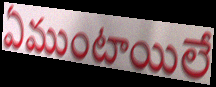
ఏముంటాయిలే